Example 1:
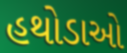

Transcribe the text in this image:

હથોડાઓ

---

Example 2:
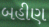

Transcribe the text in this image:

બહીણ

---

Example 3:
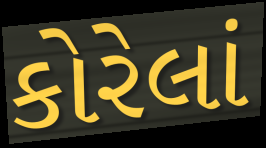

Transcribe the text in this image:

કોરેલાં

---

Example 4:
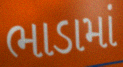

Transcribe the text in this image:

ભાડામાં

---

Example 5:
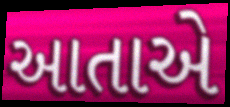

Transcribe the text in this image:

આતાએ